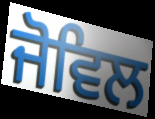
ਜੋਵਿਲ